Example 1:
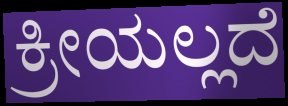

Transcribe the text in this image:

ಕ್ರೀಯಲ್ಲದೆ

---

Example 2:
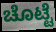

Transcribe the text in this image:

ಚೊಟ್ಟೆ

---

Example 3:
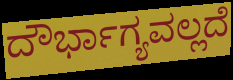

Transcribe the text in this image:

ದೌರ್ಭಾಗ್ಯವಲ್ಲದೆ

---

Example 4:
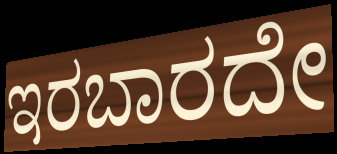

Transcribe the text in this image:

ಇರಬಾರದೇ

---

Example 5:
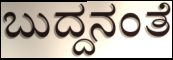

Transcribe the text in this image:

ಬುದ್ದನಂತೆ